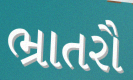
ભ્રાતરૌ